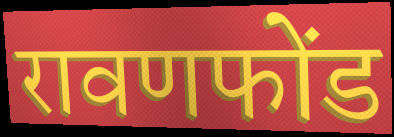
रावणफोंड